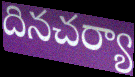
దినచర్యా